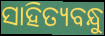
ସାହିତ୍ୟବନ୍ଧୁ